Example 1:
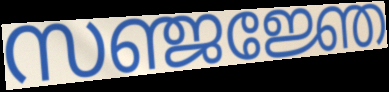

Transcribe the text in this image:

സഞ്ജജ്ഞേ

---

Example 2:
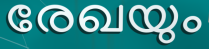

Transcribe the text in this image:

രേഖയും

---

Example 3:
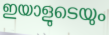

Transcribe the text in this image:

ഇയാളുടെയും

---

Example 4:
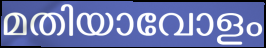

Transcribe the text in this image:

മതിയാവോളം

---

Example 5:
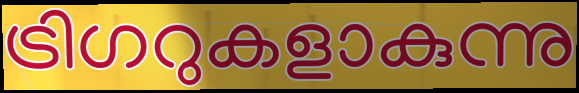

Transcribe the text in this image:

ട്രിഗറുകളാകുന്നു